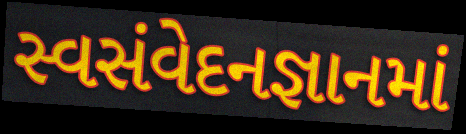
સ્વસંવેદનજ્ઞાનમાં